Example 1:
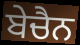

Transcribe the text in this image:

ਬੇਚੈਨ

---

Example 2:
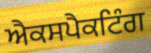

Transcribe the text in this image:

ਐਕਸਪੈਕਟਿੰਗ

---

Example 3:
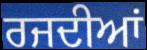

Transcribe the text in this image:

ਰਜਦੀਆਂ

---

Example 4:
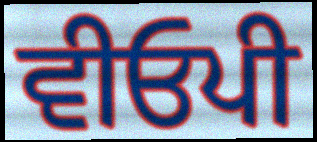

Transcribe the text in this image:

ਵੀਓਪੀ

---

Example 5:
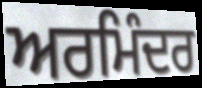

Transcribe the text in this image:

ਅਰਮਿੰਦਰ